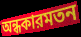
অন্ধকারমতন